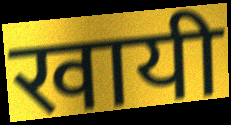
खायी